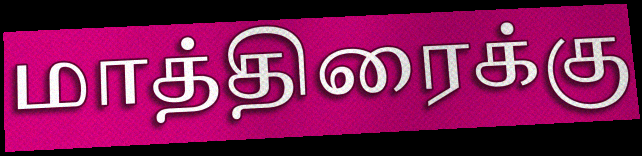
மாத்திரைக்கு